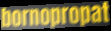
bornopropat